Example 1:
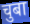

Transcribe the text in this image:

चुबा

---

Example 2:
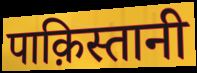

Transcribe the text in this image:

पाक़िस्तानी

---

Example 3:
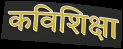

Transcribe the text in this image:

कविशिक्षा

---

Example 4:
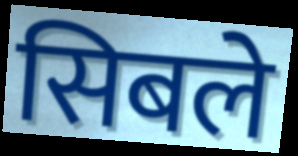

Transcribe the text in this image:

सिबले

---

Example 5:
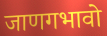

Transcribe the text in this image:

जाणगभावो